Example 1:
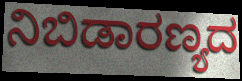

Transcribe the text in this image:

ನಿಬಿಡಾರಣ್ಯದ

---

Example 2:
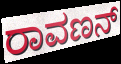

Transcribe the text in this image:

ರಾವಣನ್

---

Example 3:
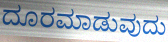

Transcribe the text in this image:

ದೂರಮಾಡುವುದು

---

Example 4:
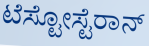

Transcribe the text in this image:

ಟೆಸ್ಟೋಸ್ಟೆರಾನ್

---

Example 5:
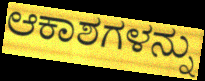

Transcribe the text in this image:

ಆಕಾಶಗಳನ್ನು